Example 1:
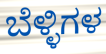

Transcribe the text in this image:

ಬೆಳ್ಳಿಗಳ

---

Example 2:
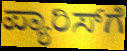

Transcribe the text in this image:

ಪ್ಯಾರಿಸ್‍ಗೆ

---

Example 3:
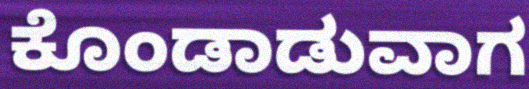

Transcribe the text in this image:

ಕೊಂಡಾಡುವಾಗ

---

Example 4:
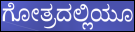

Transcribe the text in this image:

ಗೋತ್ರದಲ್ಲಿಯೂ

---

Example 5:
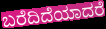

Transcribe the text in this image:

ಬರೆದಿದೆಯಾದರೆ